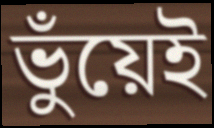
ভুঁয়েই